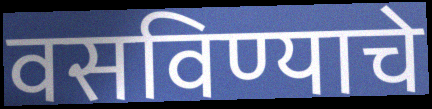
वसविण्याचे